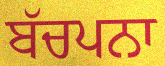
ਬੱਚਪਨਾ